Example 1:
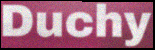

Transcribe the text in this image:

Duchy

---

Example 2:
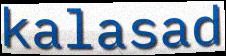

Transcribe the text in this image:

kalasad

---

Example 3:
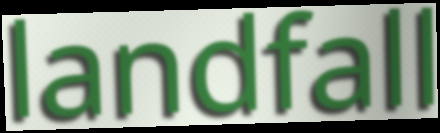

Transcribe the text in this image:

landfall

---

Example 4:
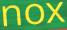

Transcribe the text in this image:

nox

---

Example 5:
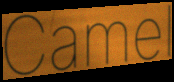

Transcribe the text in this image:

Camel